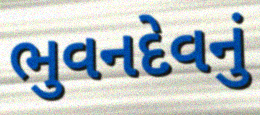
ભુવનદેવનું